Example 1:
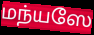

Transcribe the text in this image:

மந்யஸே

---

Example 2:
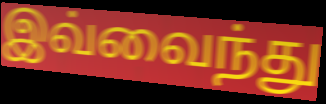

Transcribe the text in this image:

இவ்வைந்து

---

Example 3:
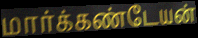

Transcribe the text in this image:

மார்க்கண்டேயன்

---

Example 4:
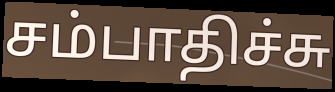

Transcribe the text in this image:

சம்பாதிச்சு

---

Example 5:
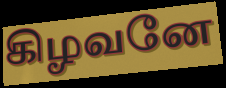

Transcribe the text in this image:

கிழவனே